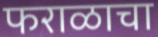
फराळाचा